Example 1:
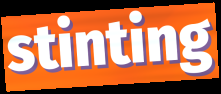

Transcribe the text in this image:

stinting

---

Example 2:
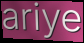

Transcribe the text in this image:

ariye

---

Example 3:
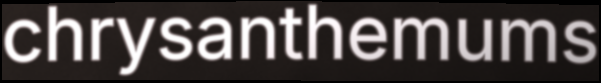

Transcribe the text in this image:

chrysanthemums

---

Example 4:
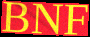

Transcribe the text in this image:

BNF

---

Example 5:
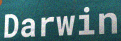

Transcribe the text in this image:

Darwin